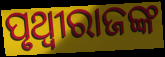
ପୃଥ୍ଵୀରାଜଙ୍କ